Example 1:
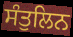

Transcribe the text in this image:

ਸੰਤੁਲਿਨ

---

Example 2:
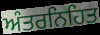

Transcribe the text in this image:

ਅੰਤਰਨਿਹਿਤ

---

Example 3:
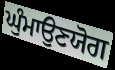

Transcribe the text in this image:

ਘੁੰਮਾਉਣਯੋਗ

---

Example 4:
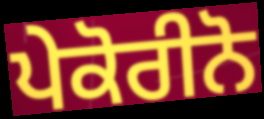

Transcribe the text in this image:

ਪੇਕੋਰੀਨੋ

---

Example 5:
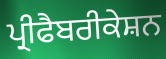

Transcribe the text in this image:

ਪ੍ਰੀਫੈਬਰੀਕੇਸ਼ਨ